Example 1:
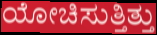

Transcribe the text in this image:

ಯೋಚಿಸುತ್ತಿತ್ತು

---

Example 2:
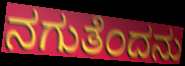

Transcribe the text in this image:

ನಗುತೆಂದನು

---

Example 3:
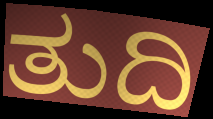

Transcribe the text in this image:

ತುದಿ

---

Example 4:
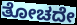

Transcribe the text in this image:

ತೋಚದೇ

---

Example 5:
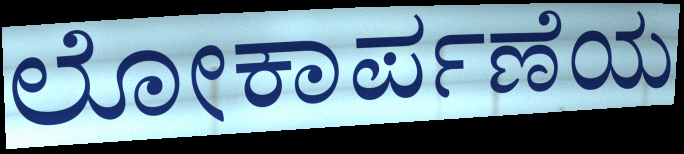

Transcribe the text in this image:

ಲೋಕಾರ್ಪಣೆಯ